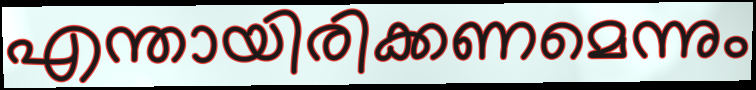
എന്തായിരിക്കണമെന്നും